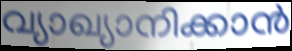
വ്യാഖ്യാനിക്കാൻ